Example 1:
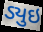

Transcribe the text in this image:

ડ્યુઇ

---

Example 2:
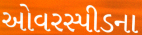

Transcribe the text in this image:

ઓવરસ્પીડના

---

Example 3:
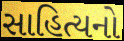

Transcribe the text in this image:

સાહિત્યનો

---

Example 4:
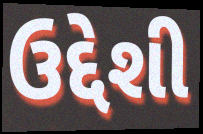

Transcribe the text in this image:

ઉદ્દેશી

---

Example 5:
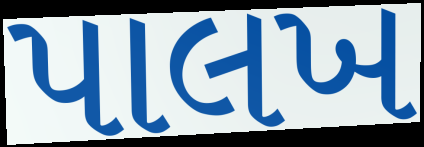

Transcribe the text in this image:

પાલખ